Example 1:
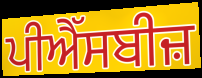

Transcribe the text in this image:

ਪੀਐੱਸਬੀਜ਼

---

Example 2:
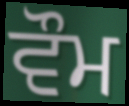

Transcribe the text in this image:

ਵੌਮ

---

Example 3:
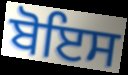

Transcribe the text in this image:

ਬੋਇਸ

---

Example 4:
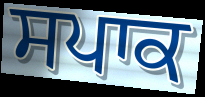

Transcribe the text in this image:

ਸਪਾਕ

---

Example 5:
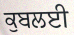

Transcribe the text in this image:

ਕੁਬਲਈ